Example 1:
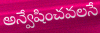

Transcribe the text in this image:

అన్వేషించవలసే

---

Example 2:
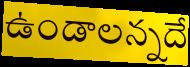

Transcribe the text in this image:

ఉండాలన్నదే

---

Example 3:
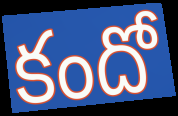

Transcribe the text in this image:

కందో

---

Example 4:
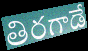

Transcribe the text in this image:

తిరగాడే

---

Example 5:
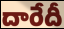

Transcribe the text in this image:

దారేదీ